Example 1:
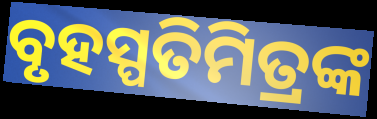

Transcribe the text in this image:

ବୃହସ୍ପତିମିତ୍ରଙ୍କ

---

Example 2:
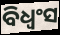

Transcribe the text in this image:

ବିଧ୍ଵଂସ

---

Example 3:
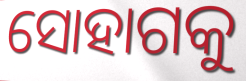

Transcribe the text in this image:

ସୋହାଗକୁ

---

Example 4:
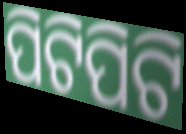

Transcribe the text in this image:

ପିଟିପିଟି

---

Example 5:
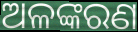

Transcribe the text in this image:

ଅଳଙ୍କରଣ